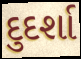
દુદર્શા